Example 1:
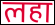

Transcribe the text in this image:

लहा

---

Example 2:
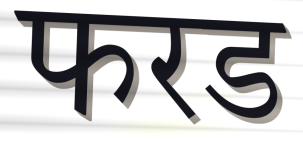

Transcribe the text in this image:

फरड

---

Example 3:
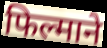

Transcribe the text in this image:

फिल्माने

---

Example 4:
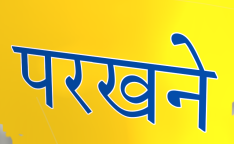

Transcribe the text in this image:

परखने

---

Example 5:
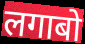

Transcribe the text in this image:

लगाबो